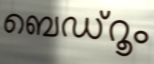
ബെഡ്റൂം